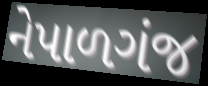
નેપાળગંજ